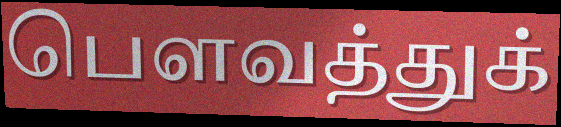
பௌவத்துக்